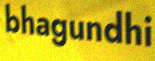
bhagundhi